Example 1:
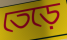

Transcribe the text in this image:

তেড়ে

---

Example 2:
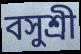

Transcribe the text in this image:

বসুশ্রী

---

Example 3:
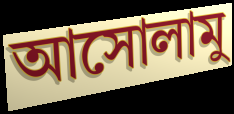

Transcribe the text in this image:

আসোলামু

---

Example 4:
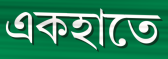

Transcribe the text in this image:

একহাতে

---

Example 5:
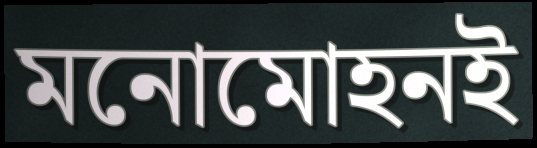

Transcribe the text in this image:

মনোমোহনই